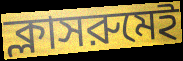
ক্লাসরুমেই